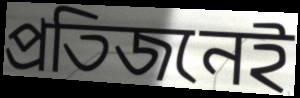
প্ৰতিজনেই